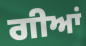
ਗੀਆਂ